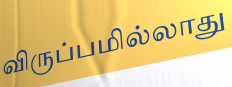
விருப்பமில்லாது